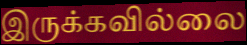
இருக்கவில்லை